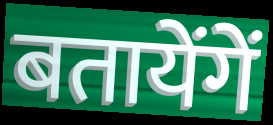
बतायेंगें